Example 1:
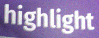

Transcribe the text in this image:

highlight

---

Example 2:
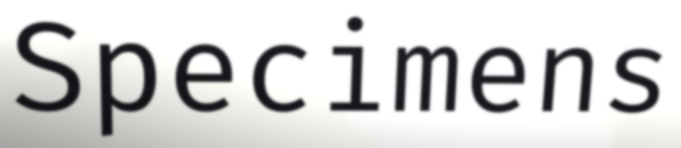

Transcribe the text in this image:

Specimens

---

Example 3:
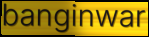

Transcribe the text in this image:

banginwar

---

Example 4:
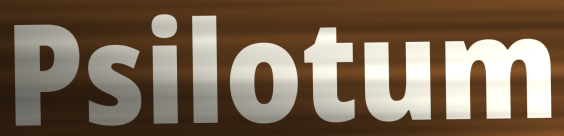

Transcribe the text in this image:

Psilotum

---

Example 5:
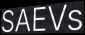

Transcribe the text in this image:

SAEVs